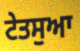
ਟੇਤਸੁਆ